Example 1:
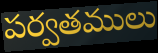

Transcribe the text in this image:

పర్వతములు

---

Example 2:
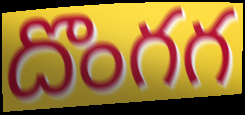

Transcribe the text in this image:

దొంగగ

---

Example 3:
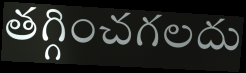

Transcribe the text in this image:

తగ్గించగలదు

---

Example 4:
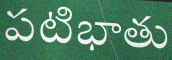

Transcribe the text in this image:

పటిభాతు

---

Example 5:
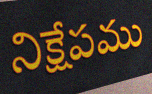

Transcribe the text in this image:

నిక్షేపము